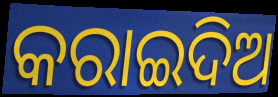
କରାଇଦିଅ